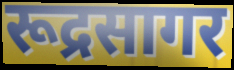
रूद्रसागर